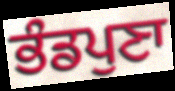
ਭੰਡਪੁਣਾ